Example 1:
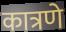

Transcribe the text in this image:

कात्रणे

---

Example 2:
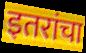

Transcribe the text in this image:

इतरांचा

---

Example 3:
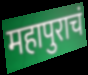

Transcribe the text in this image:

महापुराचं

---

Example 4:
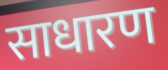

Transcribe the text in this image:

साधारण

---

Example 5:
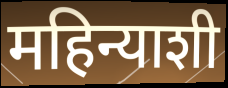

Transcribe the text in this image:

महिन्याशी